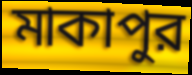
মাকাপুর